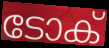
ടോക്